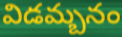
విడమ్బనం